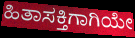
ಹಿತಾಸಕ್ತಿಗಾಗಿಯೇ